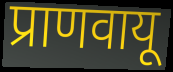
प्राणवायू